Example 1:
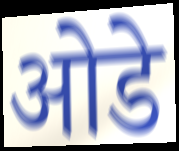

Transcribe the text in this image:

ओडे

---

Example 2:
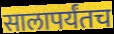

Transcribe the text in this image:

सालापर्यंतच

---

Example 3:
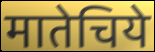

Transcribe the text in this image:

मातेचिये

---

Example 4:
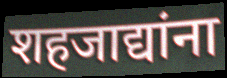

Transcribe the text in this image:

शहजाद्यांना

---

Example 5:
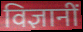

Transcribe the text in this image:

विज्ञानीं